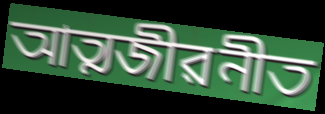
আত্মজীৱনীত